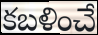
కబళించే